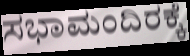
ಸಭಾಮಂದಿರಕ್ಕೆ